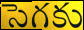
సెగకు